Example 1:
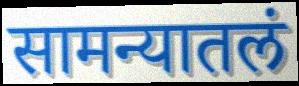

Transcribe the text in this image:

सामन्यातलं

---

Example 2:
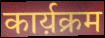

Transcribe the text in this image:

कार्य़क्रम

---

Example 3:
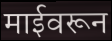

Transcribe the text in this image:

माईवरून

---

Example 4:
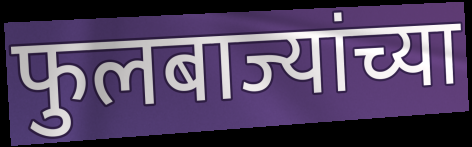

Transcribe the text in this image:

फुलबाज्यांच्या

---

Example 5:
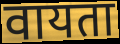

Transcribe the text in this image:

वायता